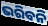
ଭରିବନି